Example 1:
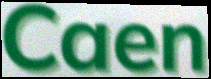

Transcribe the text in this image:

Caen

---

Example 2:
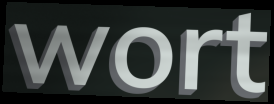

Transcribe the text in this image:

wort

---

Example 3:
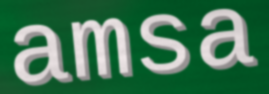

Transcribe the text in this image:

amsa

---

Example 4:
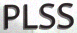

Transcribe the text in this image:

PLSS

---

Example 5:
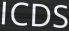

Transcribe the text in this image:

ICDS